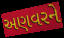
અણવરને